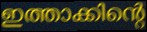
ഇത്താക്കിന്റെ